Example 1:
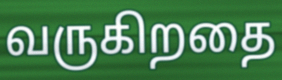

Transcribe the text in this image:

வருகிறதை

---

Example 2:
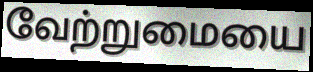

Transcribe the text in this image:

வேற்றுமையை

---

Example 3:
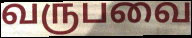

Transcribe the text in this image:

வருபவை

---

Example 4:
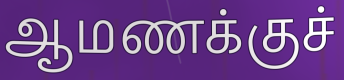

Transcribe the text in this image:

ஆமணக்குச்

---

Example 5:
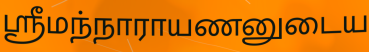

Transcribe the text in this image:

ஸ்ரீமந்நாராயணனுடைய